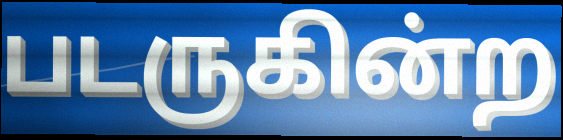
படருகின்ற